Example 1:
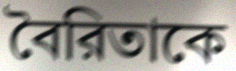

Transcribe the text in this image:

বৈরিতাকে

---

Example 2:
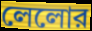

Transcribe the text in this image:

লেলোর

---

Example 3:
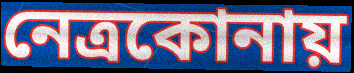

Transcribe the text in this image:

নেত্রকোনায়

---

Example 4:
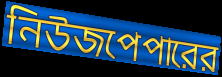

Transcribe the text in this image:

নিউজপেপারের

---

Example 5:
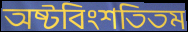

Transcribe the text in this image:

অষ্টবিংশতিতম